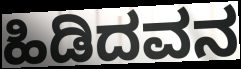
ಹಿಡಿದವನ